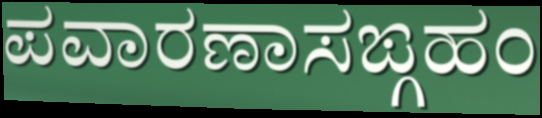
ಪವಾರಣಾಸಙ್ಗಹಂ